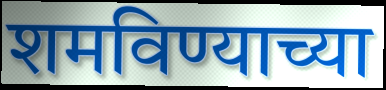
शमविण्याच्या